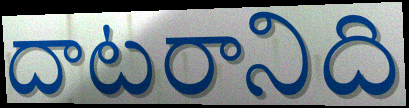
దాటరానిది